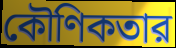
কৌণিকতার